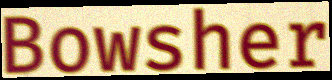
Bowsher